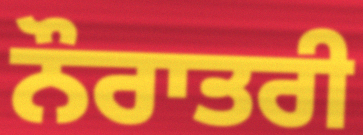
ਨੌਰਾਤਰੀ